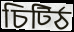
চিট্ঠি